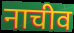
नाचीव